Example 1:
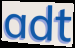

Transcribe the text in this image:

adt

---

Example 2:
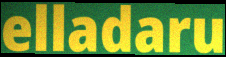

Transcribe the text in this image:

elladaru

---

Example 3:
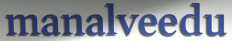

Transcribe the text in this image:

manalveedu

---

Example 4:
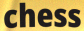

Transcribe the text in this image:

chess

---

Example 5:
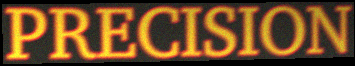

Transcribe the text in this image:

PRECISION